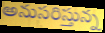
అనుసరిస్తున్న